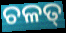
ଚଳତ୍